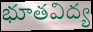
భూతవిద్య